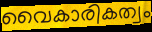
വൈകാരികത്വം